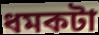
ধমকটা